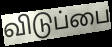
விடுப்பை